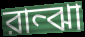
রান্ঝা